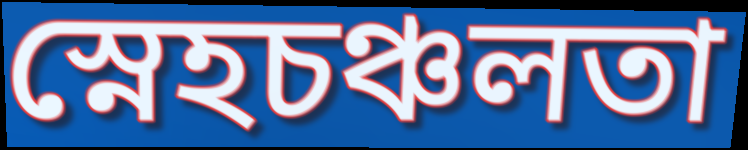
স্নেহচঞ্চলতা